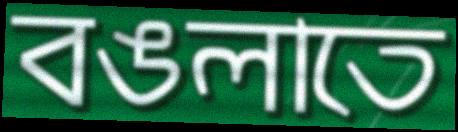
বঙলাতে